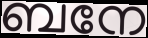
ബനേ